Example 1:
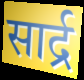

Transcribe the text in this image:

सार्द्र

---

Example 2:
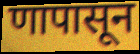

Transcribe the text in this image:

णापासून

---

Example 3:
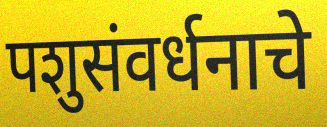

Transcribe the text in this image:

पशुसंवर्धनाचे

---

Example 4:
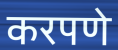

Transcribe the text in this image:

करपणे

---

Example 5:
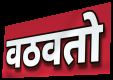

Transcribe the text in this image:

वठवतो